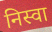
निस्वा